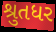
શ્રુતધર